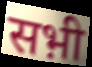
सभ़ी